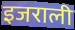
इजराली